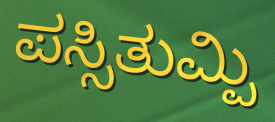
ಪಸ್ಸಿತುಮ್ಪಿ